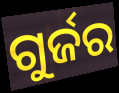
ଗୁର୍ଜର